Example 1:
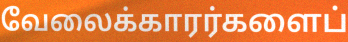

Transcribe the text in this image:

வேலைக்காரர்களைப்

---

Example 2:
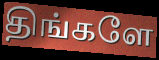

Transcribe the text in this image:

திங்களே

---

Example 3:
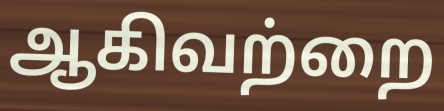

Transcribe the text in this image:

ஆகிவற்றை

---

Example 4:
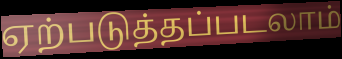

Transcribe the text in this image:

ஏற்படுத்தப்படலாம்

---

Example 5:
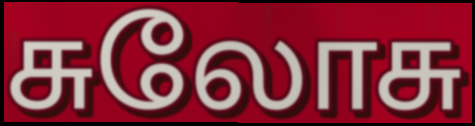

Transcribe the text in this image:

சுலோசு